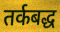
तर्कबद्ध